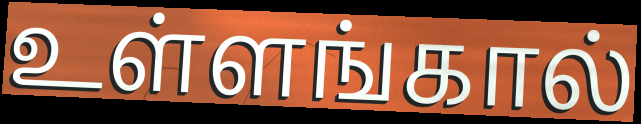
உள்ளங்கால்